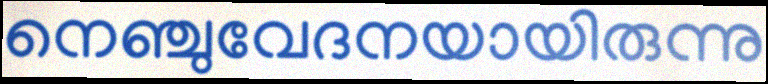
നെഞ്ചുവേദനയായിരുന്നു